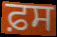
ਫ਼ਸ